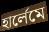
হার্লেমে